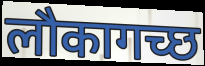
लौकागच्छ